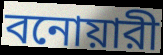
বনোয়ারী